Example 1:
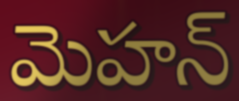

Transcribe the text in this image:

మెహన్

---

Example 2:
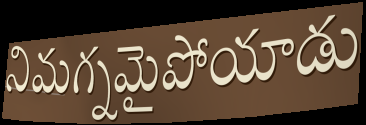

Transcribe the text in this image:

నిమగ్నమైపోయాడు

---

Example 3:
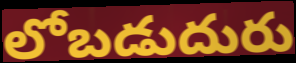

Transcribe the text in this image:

లోబడుదురు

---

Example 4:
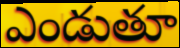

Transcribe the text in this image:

ఎండుతూ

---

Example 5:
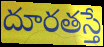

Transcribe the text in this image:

దూరతస్తే